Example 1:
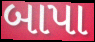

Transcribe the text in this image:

બાપા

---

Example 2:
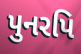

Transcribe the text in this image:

પુનરપિ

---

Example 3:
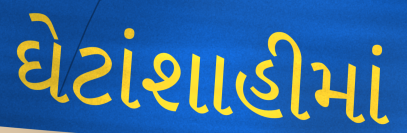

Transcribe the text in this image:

ઘેટાંશાહીમાં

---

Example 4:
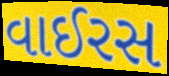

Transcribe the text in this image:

વાઈરસ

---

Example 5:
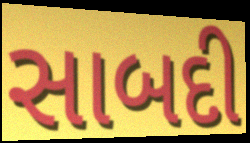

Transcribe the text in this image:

સાબદી